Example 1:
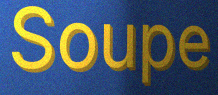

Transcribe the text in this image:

Soupe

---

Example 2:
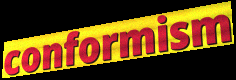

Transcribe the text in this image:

conformism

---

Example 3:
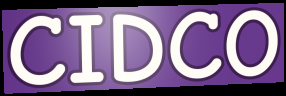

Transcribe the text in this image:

CIDCO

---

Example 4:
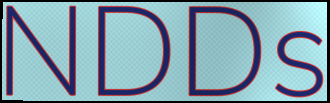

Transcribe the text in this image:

NDDs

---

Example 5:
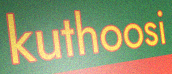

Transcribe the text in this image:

kuthoosi